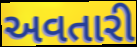
અવતારી